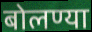
बोलण्या